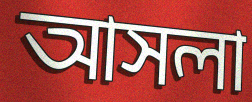
আসলা